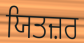
ਯਿਤਜ਼ਰ